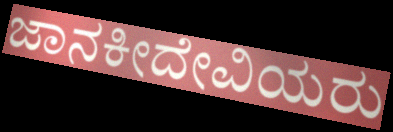
ಜಾನಕೀದೇವಿಯರು